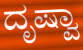
ದೃಷ್ವಾ